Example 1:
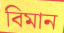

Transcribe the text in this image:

বিমান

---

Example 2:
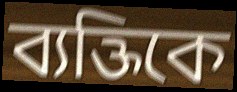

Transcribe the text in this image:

ব্যক্তিকে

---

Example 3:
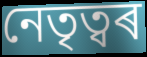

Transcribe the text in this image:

নেতৃত্বৰ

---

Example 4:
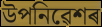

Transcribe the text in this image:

উপনিৱেশৰ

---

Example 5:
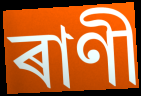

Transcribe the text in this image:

ৰাণী